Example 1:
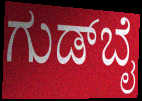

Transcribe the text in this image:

ಗುಡ್‌ಬೈ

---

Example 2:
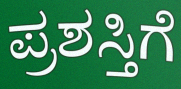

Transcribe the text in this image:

ಪ್ರಶಸ್ತಿಗೆ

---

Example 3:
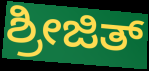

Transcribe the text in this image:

ಶ್ರೀಜಿತ್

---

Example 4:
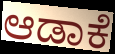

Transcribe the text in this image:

ಆಡಾಕೆ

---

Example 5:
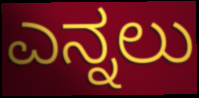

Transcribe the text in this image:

ಎನ್ನಲು